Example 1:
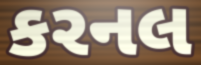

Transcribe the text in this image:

કરનલ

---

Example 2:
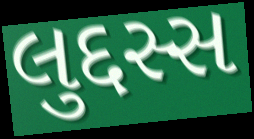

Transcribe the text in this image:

લુદ્દસ્સ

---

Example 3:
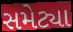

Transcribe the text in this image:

સમેટ્યા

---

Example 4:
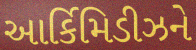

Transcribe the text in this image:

આર્કિમિડીઝને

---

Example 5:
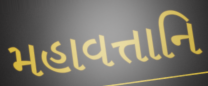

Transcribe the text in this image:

મહાવત્તાનિ